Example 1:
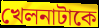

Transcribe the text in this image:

খেলনাটাকে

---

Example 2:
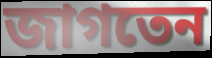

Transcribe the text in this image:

জাগতেন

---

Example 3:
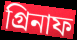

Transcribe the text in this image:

গ্রিনাফ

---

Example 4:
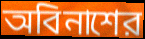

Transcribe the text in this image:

অবিনাশের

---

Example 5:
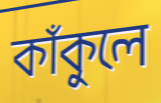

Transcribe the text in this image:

কাঁকুলে